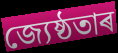
জ্যেষ্ঠতাৰ